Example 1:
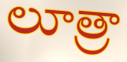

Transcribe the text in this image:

లూత్రా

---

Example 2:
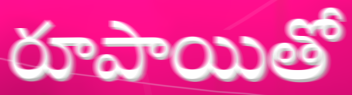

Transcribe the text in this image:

రూపాయితో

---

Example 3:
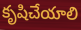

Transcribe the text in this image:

కృషిచేయాలి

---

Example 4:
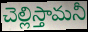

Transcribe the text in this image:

చెల్లిస్తామనీ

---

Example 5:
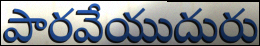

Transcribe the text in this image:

పారవేయుదురు